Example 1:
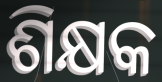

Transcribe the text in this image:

ଶିକ୍ଷକ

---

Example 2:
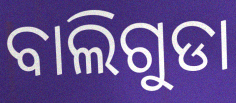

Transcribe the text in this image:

ବାଲିଗୁଡା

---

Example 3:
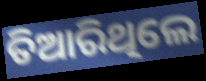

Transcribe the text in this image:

ତିଆରିଥିଲେ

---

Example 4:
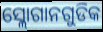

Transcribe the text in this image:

ସ୍ଲୋଗାନଗୁଡିକ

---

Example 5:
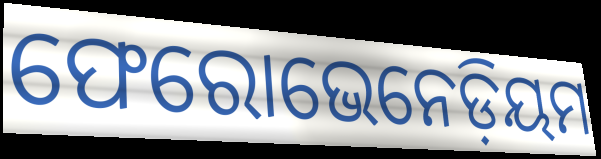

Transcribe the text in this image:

ଫେରୋଭେନେଡ଼ିୟମ